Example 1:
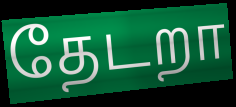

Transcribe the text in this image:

தேடறா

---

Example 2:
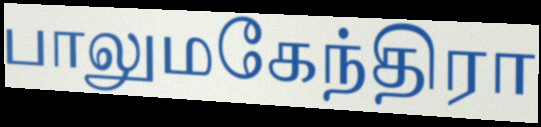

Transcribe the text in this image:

பாலுமகேந்திரா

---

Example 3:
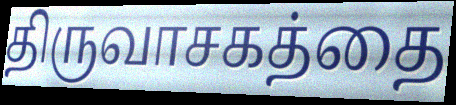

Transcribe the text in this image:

திருவாசகத்தை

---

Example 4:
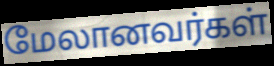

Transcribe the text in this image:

மேலானவர்கள்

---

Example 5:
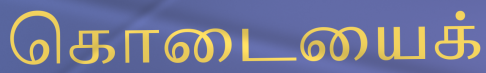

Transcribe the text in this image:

கொடையைக்